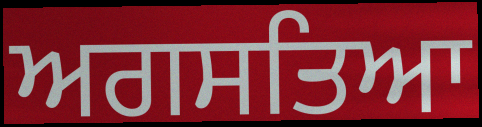
ਅਗਸਤਿਆ